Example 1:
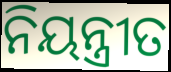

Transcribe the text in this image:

ନିୟନ୍ତ୍ରୀତ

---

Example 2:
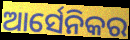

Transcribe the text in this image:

ଆର୍ସେନିକର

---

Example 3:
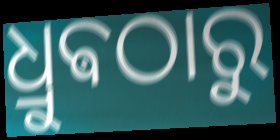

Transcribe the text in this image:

ଧ୍ରୁଵଠାରୁ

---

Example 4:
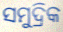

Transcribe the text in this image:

ସମୁଦ୍ରିକ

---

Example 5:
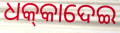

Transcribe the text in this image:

ଧକ୍‌କାଦେଇ